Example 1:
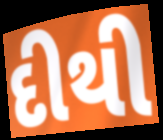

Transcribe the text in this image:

દીથી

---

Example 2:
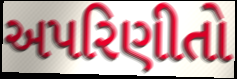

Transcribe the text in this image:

અપરિણીતો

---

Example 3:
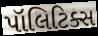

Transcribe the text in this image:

પૉલિટિક્સ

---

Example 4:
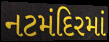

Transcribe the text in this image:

નટમંદિરમાં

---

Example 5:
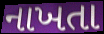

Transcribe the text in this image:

નાખતા